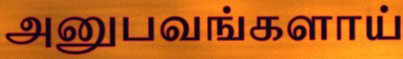
அனுபவங்களாய்